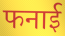
फनाई